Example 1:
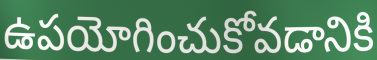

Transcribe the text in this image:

ఉపయోగించుకోవడానికి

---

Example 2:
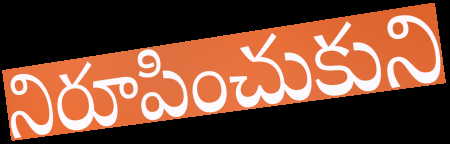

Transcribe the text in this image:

నిరూపించుకుని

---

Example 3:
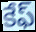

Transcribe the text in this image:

కేఫ్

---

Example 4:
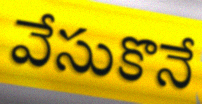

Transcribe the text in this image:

వేసుకొనే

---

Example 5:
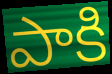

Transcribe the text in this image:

పాకి